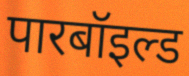
पारबॉइल्ड